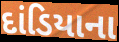
દાંડિયાના